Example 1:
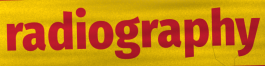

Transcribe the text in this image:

radiography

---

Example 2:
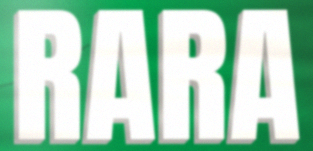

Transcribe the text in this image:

RARA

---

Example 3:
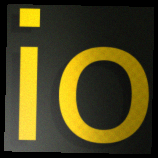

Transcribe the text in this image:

io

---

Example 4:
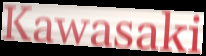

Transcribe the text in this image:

Kawasaki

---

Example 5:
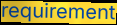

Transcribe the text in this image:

requirement